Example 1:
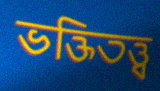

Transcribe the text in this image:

ভক্তিতত্ত্ব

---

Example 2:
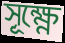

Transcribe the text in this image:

সূক্ষ্ণে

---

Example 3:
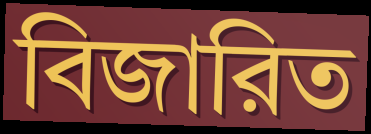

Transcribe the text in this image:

বিজারিত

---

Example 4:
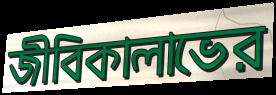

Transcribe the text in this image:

জীবিকালাভের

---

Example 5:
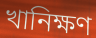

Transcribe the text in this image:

খানিক্ষণ